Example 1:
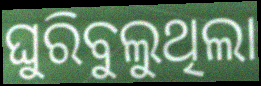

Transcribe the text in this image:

ଘୁରିବୁଲୁଥିଲା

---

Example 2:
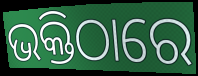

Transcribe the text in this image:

ଭକ୍ତିଠାରେ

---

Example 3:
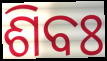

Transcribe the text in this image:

ଶିବଃ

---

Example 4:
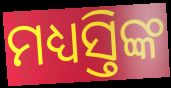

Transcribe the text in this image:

ମଧ୍ୟସ୍ତିଙ୍କ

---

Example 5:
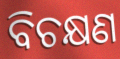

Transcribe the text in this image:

ବିଚକ୍ଷଣ